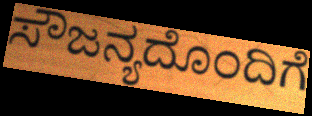
ಸೌಜನ್ಯದೊಂದಿಗೆ